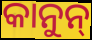
କାନୁନ୍